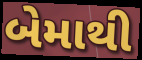
બેમાથી